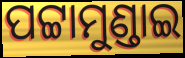
ପଟ୍ଟାମୁଣ୍ଡାଇ